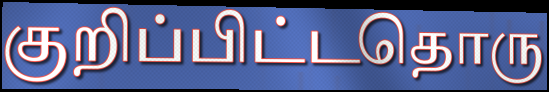
குறிப்பிட்டதொரு